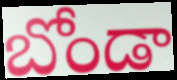
బోండా